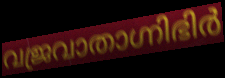
വജ്രവാതാഗ്നിഭിർ